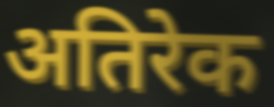
अतिरेक